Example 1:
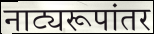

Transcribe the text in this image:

नाट्यरूपांतर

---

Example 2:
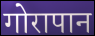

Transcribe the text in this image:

गोरापान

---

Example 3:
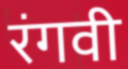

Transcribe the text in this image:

रंगवी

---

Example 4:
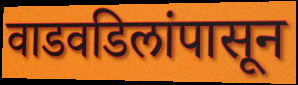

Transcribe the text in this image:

वाडवडिलांपासून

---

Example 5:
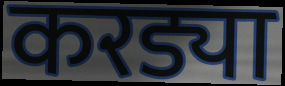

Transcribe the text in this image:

करड्या